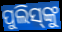
ପୁଲିସ୍‌ଙ୍କୁ